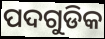
ପଦଗୁଡିକ